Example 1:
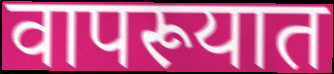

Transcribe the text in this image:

वापरूयात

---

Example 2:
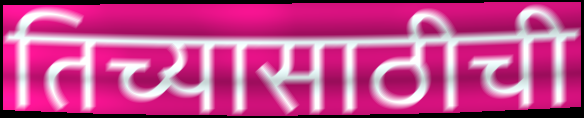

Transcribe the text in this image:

तिच्यासाठीची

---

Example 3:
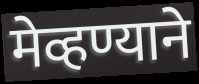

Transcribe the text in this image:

मेव्हण्याने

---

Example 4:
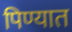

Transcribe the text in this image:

पिण्यात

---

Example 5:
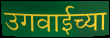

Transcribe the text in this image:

उगवाईच्या